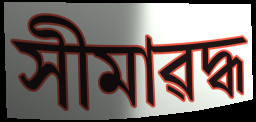
সীমাৱদ্ধ